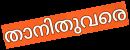
താനിതുവരെ